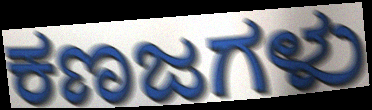
ಕಣಜಗಳು